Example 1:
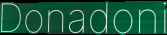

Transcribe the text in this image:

Donadoni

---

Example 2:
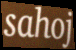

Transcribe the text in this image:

sahoj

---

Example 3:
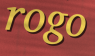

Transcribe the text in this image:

rogo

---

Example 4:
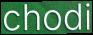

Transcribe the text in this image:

chodi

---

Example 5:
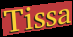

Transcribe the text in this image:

Tissa